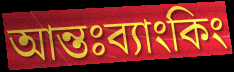
আন্তঃব্যাংকিং